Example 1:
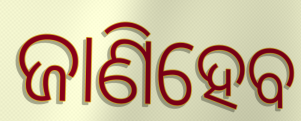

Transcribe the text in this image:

ଜାଣିହେବ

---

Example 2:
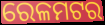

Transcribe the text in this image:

ରେଳମଟର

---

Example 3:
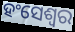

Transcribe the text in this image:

ହଂସେଶ୍ୱର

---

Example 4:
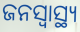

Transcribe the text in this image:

ଜନସ୍ୱାସ୍ଥ୍ୟ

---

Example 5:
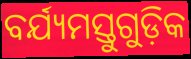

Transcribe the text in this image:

ବର୍ଯ୍ୟମସ୍ତୁଗୁଡ଼ିକ